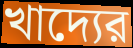
খাদ্যের